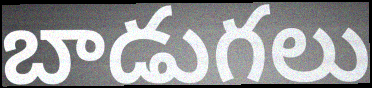
బాడుగలు